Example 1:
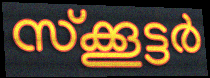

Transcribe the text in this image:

സ്ക്കൂട്ടർ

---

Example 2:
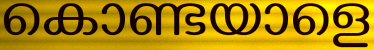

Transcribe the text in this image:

കൊണ്ടയാളെ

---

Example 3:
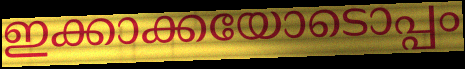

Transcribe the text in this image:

ഇക്കാക്കയോടൊപ്പം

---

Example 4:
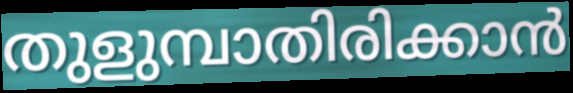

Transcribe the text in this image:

തുളുമ്പാതിരിക്കാൻ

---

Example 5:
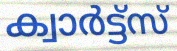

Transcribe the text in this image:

ക്വാർട്ട്സ്